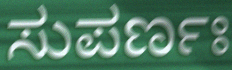
ಸುಪರ್ಣಃ